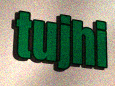
tujhi